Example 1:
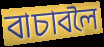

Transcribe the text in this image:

বাচাবলৈ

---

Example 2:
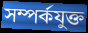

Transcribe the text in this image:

সম্পৰ্কযুক্ত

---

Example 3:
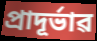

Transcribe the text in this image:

প্ৰাদূৰ্ভাৱ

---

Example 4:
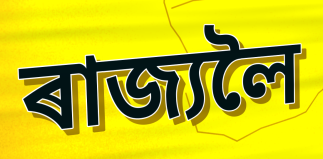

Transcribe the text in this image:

ৰাজ্যলৈ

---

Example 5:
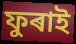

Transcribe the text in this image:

ফুৰাই